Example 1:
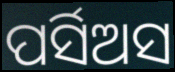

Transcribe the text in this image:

ପର୍ସିଅସ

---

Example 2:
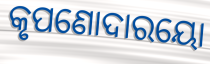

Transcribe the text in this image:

କୃପଣୋଦାରୟୋ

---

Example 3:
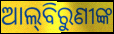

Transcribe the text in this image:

ଆଲ୍‌ବିରୁଣୀଙ୍କ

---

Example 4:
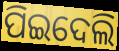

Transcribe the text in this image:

ପିଇଦେଲି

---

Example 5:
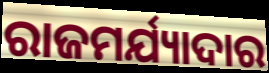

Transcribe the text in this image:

ରାଜମର୍ଯ୍ୟାଦାର